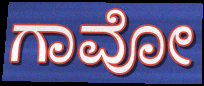
ಗಾವೋ